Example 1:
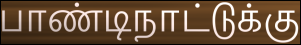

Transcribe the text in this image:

பாண்டிநாட்டுக்கு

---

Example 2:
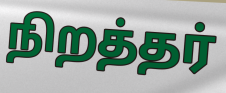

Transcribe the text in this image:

நிறத்தர்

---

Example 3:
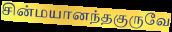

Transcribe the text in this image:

சின்மயானந்தகுருவே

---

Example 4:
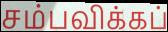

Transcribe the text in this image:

சம்பவிக்கப்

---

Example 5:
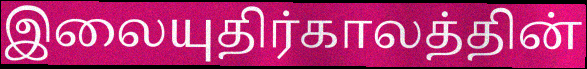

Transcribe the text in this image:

இலையுதிர்காலத்தின்